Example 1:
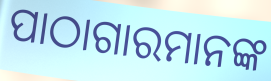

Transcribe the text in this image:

ପାଠାଗାରମାନଙ୍କ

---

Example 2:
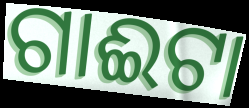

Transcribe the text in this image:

ଗାଈଟା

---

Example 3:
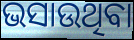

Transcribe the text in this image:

ଭସାଉଥିବା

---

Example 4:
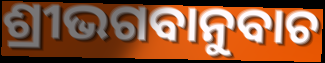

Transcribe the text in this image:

ଶ୍ରୀଭଗବାନୁବାଚ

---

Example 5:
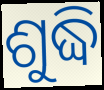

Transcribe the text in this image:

ଶୁଦ୍ଧି